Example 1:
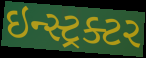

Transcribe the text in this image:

ઇન્સ્ટ્રક્ટર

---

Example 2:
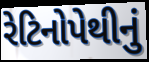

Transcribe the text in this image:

રેટિનોપેથીનું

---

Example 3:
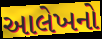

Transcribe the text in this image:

આલેખનો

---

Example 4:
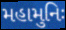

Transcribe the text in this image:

મહામુનિઃ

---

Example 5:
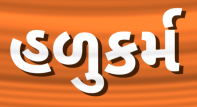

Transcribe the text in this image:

હળુકર્મ